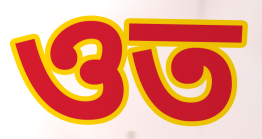
ওত